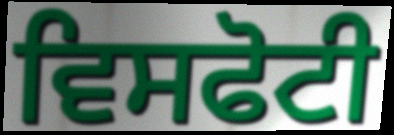
ਵਿਸਫੋਟੀ